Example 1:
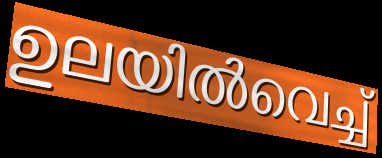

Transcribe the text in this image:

ഉലയിൽവെച്ച്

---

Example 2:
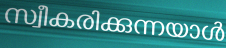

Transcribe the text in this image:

സ്വീകരിക്കുന്നയാൾ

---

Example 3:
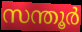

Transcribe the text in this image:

സന്തൂർ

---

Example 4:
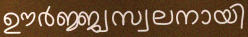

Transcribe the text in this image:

ഊർജ്ജ്വസ്വലനായി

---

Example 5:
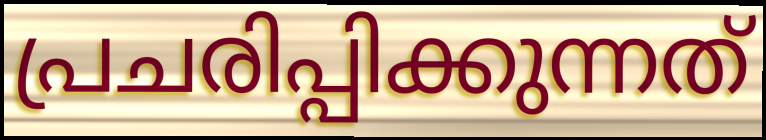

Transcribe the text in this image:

പ്രചരിപ്പിക്കുന്നത്